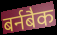
बर्नबैक